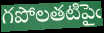
గపోలతటిపైఁ